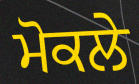
ਮੋਕਲੇ